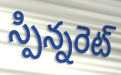
స్పిన్నరెట్